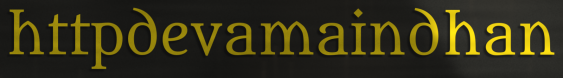
httpdevamaindhan